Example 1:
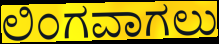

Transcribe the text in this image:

ಲಿಂಗವಾಗಲು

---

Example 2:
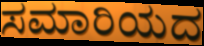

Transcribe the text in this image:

ಸಮಾರಿಯದ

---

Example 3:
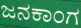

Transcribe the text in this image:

ಜನಕಾಂಗ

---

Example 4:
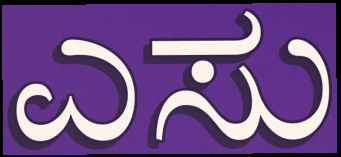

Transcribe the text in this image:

ಎಸು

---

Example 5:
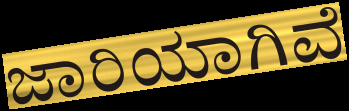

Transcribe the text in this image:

ಜಾರಿಯಾಗಿವೆ